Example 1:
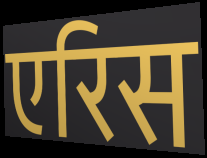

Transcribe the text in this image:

एरिस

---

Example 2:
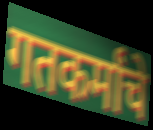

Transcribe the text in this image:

गतकर्मांचे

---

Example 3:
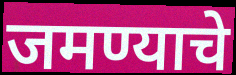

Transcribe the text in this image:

जमण्याचे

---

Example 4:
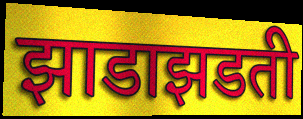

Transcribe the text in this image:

झाडाझडती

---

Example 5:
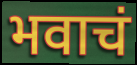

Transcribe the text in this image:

भवाचं